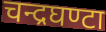
चन्द्रघण्टा